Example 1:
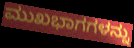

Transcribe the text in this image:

ಮುಖಭಾಗಗಳನ್ನು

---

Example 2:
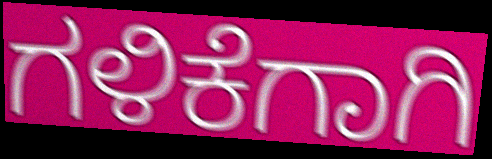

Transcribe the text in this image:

ಗಳಿಕೆಗಾಗಿ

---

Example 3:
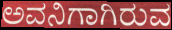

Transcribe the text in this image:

ಅವನಿಗಾಗಿರುವ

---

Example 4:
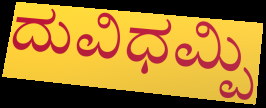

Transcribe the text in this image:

ದುವಿಧಮ್ಪಿ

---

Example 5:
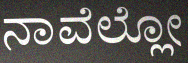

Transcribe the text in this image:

ನಾವೆಲ್ಲೋ